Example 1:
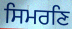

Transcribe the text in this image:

ਸਿਮਰਣਿ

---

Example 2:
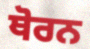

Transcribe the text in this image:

ਥੋਰਨ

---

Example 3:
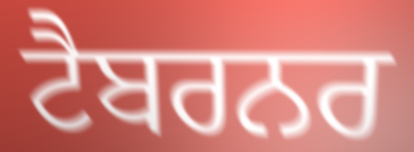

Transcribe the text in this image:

ਟੈਬਰਨਰ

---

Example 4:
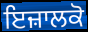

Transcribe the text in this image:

ਇਜ਼ਾਲਕੋ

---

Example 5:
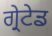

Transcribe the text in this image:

ਗ੍ਰੇਟੇਡ